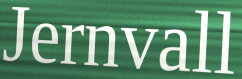
Jernvall